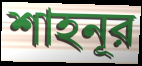
শাহনূর